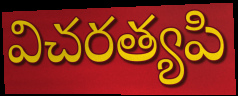
విచరత్యపి